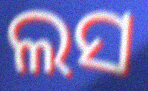
ଲସ